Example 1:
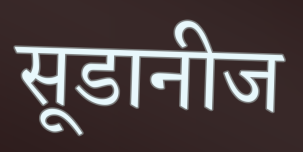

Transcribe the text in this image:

सूडानीज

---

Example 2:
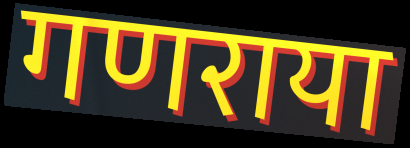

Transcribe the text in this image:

गणराया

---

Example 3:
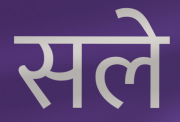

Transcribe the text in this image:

सले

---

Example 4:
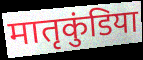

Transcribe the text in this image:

मातृकुंडिया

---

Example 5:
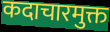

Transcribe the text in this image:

कदाचारमुक्त